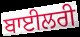
ਬਾਈਲਰੀ